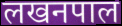
लखनपाल